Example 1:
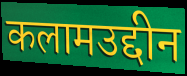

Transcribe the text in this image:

कलामउद्दीन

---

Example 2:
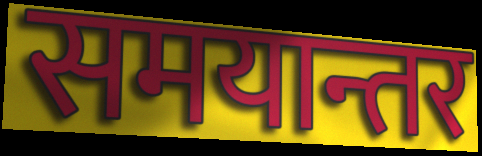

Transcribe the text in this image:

समयान्तर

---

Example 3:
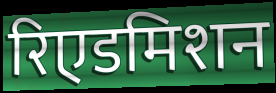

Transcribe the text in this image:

रिएडमिशन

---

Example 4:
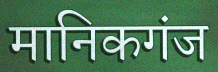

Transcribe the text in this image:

मानिकगंज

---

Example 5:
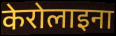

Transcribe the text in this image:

केरोलाइना